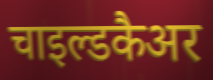
चाइल्डकैअर